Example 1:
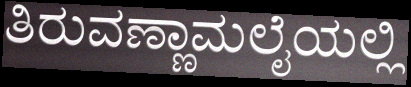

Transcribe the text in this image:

ತಿರುವಣ್ಣಾಮಲೈಯಲ್ಲಿ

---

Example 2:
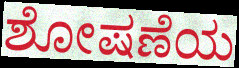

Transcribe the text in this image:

ಶೋಷಣೆಯ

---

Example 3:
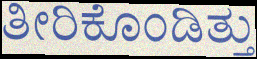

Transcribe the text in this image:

ತೀರಿಕೊಂಡಿತ್ತು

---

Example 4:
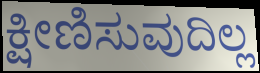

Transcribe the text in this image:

ಕ್ಷೀಣಿಸುವುದಿಲ್ಲ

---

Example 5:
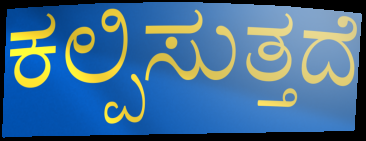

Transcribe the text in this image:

ಕಲ್ಪಿಸುತ್ತದೆ